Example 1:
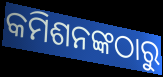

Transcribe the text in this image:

କମିଶନଙ୍କଠାରୁ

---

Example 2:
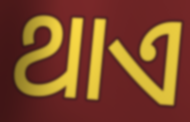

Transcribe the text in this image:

ଥାଏ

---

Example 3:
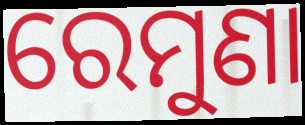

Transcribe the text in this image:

ରେମୁଣା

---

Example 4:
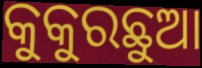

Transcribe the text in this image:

କୁକୁରଛୁଆ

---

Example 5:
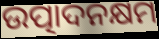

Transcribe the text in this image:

ଉତ୍ପାଦନକ୍ଷମ